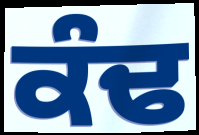
ਕੰਢ